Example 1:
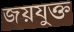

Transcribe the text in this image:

জয়যুক্ত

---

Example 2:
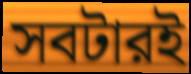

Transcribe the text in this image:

সবটারই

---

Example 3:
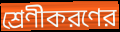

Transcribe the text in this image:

শ্রেণীকরণের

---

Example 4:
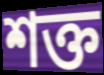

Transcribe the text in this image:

শক্ত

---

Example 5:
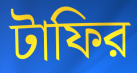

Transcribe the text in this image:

টাফির